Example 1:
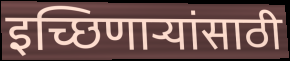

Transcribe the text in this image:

इच्छिणाऱ्यांसाठी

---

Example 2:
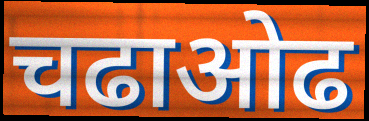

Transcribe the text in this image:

चढाओढ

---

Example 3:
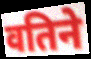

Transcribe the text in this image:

वतिने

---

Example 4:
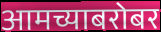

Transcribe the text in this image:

आमच्याबरोबर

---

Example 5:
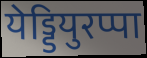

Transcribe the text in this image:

येड्डियुरप्पा